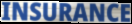
INSURANCE